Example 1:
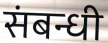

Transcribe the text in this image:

संबन्‍धी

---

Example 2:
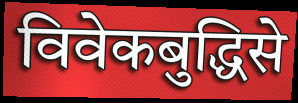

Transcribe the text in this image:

विवेकबुद्धिसे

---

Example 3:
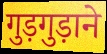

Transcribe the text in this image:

गुड़गुड़ाने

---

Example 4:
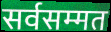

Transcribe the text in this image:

सर्वसम्मत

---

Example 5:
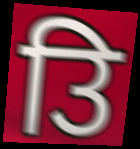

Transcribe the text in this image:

उि